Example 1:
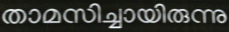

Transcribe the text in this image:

താമസിച്ചായിരുന്നു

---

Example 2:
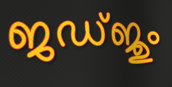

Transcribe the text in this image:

ജഡ്ജും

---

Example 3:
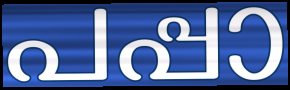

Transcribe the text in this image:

പപ്പാ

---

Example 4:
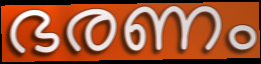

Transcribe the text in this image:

ഭരണം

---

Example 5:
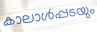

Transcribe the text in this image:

കാലാൾപ്പടയും